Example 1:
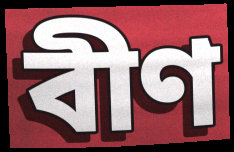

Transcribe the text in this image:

বীণ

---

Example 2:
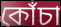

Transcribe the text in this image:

কোঁচা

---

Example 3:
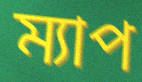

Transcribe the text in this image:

ম্যাপ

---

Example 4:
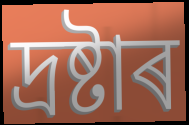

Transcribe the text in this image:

দ্ৰষ্টাৰ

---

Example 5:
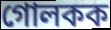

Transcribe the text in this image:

গোলকক